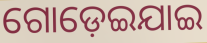
ଗୋଡ଼େଇଯାଇ